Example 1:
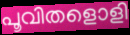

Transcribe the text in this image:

പൂവിതളൊളി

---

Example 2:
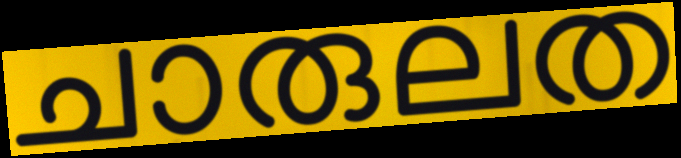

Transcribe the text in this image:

ചാരുലത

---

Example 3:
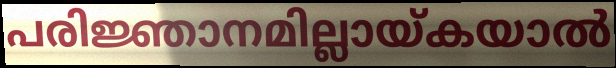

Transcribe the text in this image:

പരിജ്ഞാനമില്ലായ്കയാൽ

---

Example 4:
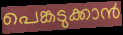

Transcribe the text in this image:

പെങ്കടുക്കാൻ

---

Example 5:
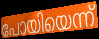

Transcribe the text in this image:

പോയിയെന്ന്